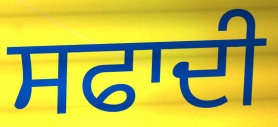
ਸਫਾਦੀ